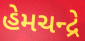
હેમચન્દ્રે